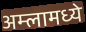
अम्लामध्ये